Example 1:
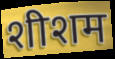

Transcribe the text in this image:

शीशम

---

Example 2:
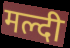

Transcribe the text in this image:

मल्दी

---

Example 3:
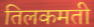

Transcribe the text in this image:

तिलकमती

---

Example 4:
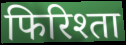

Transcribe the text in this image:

फिरिश्ता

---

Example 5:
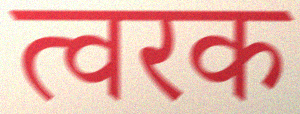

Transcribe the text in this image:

त्वरक